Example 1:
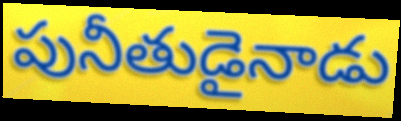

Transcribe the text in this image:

పునీతుడైనాడు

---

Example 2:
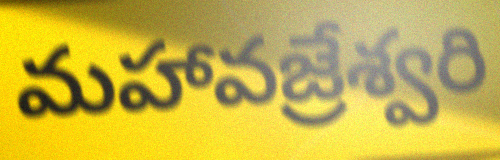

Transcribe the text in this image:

మహావజ్రేశ్వరి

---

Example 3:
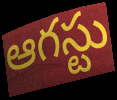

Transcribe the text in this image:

ఆగస్టు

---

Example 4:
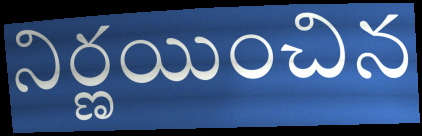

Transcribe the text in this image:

నిర్ణయించిన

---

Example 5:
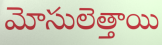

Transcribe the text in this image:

మోసులెత్తాయి